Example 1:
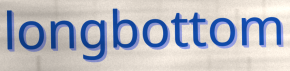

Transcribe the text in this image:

longbottom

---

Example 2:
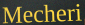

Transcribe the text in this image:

Mecheri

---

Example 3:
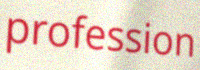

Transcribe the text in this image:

profession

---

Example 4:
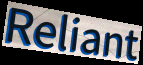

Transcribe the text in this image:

Reliant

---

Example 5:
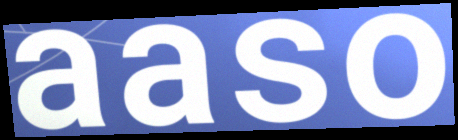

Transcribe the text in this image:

aaso